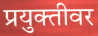
प्रयुक्तीवर